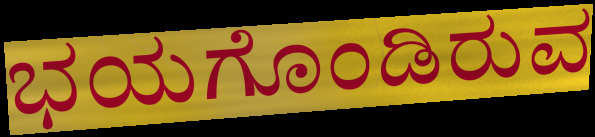
ಭಯಗೊಂಡಿರುವ